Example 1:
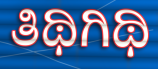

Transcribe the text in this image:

ತಿಥಿಗಿಥಿ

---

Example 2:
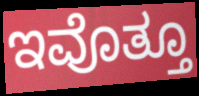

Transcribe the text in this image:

ಇವೊತ್ತೂ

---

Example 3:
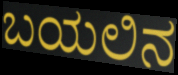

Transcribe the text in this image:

ಬಯಲಿನ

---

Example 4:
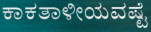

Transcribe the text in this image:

ಕಾಕತಾಳೀಯವಷ್ಟೆ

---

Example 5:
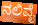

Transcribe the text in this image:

ನಲಿವೈ